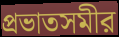
প্রভাতসমীর